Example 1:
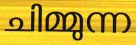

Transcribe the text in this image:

ചിമ്മുന്ന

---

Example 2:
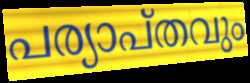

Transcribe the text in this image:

പര്യാപ്തവും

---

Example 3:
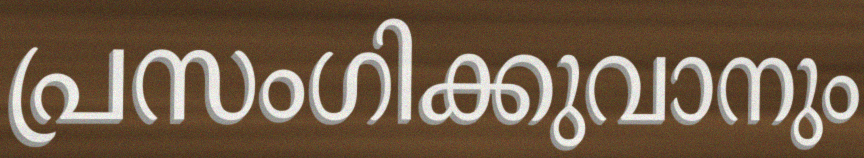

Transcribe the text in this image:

പ്രസംഗിക്കുവാനും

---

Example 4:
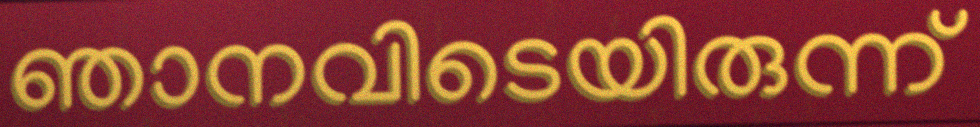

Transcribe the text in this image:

ഞാനവിടെയിരുന്ന്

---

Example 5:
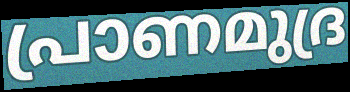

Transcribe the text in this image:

പ്രാണമുദ്ര